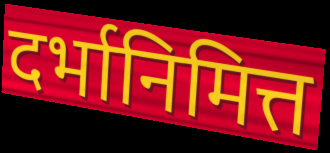
दर्भानिमित्त